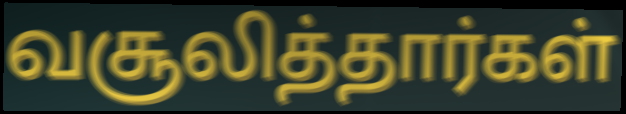
வசூலித்தார்கள்